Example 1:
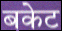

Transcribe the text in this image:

बकेट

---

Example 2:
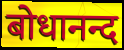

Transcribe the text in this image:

बोधानन्द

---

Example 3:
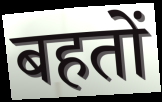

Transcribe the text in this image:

बहतों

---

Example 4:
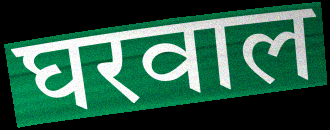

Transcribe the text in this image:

घरवाल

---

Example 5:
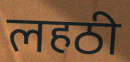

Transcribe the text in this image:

लहठी